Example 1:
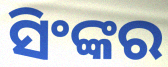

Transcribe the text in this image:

ସିଂଙ୍କର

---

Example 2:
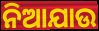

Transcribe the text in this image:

ନିଆଯାଉ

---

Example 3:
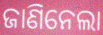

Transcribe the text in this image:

ଜାଣିନେଲା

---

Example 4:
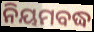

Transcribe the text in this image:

ନିୟମବଦ୍ଧ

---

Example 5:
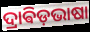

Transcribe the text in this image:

ଦ୍ରାଵିଡ଼ଭାଷା